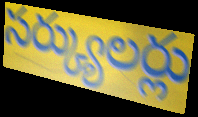
సర్క్యులర్లు